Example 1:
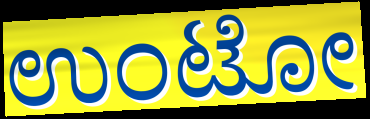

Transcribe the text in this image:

ಉಂಟೋ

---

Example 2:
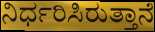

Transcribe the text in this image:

ನಿರ್ಧರಿಸಿರುತ್ತಾನೆ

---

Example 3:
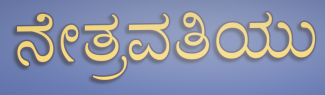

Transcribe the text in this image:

ನೇತ್ರವತಿಯು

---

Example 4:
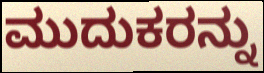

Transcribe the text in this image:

ಮುದುಕರನ್ನು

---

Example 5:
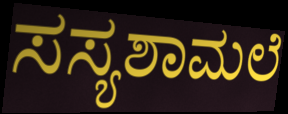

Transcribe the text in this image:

ಸಸ್ಯಶಾಮಲೆ